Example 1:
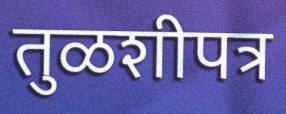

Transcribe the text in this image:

तुळशीपत्र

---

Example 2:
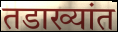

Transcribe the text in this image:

तडाख्यांत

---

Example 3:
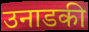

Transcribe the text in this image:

उनाडकी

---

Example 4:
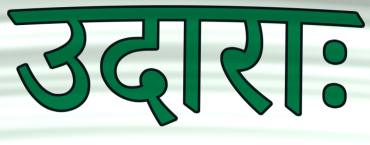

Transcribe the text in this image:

उदाराः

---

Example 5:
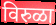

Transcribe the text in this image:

विरुळा